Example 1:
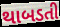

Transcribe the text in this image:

થાબડતી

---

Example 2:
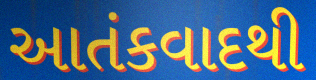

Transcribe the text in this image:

આતંકવાદથી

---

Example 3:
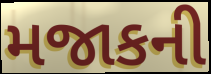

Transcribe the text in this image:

મજાકની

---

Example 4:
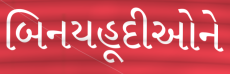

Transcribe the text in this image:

બિનયહૂદીઓને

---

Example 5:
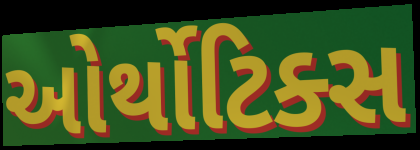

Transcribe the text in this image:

ઓર્થોટિક્સ